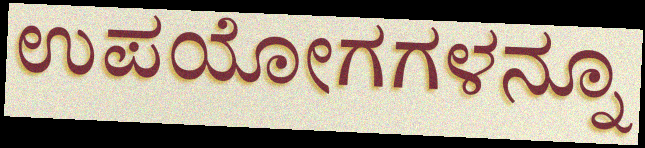
ಉಪಯೋಗಗಳನ್ನೂ